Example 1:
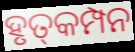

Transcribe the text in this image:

ହୃତ୍‌କମ୍ପନ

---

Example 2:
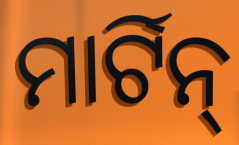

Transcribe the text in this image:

ମାର୍ଟିନ୍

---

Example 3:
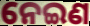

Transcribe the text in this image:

ନେଇଣ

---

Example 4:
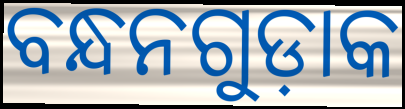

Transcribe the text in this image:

ବନ୍ଧନଗୁଡ଼ାକ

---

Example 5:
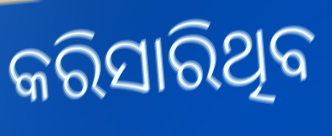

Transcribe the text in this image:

କରିସାରିଥିବ